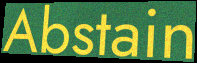
Abstain